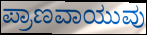
ಪ್ರಾಣವಾಯುವು